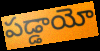
పడ్డాయో